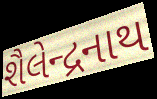
શૈલેન્દ્રનાથ